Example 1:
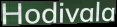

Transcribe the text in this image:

Hodivala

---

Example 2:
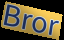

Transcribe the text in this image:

Bror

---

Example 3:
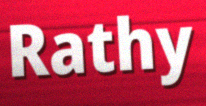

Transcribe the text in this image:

Rathy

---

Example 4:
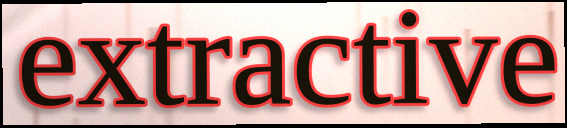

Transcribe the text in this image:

extractive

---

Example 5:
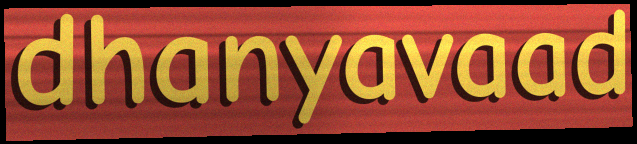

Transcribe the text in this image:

dhanyavaad